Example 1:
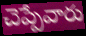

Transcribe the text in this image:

చెప్పేవారు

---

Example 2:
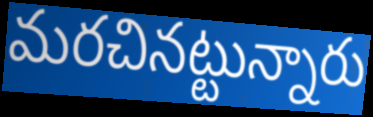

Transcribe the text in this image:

మరచినట్టున్నారు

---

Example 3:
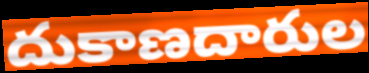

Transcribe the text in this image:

దుకాణదారుల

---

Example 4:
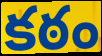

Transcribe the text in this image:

కఠం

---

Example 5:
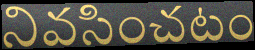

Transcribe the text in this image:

నివసించటం